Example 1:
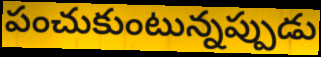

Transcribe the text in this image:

పంచుకుంటున్నప్పుడు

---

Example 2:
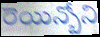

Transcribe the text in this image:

రెయిన్బోని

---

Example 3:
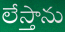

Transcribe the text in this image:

లేస్తాను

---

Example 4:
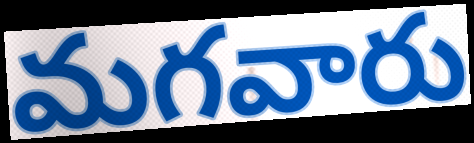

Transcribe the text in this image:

మగవారు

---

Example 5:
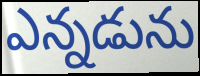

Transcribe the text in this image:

ఎన్నడును